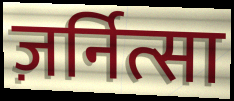
ज़र्नित्सा